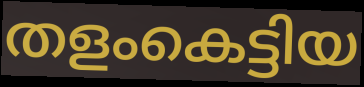
തളംകെട്ടിയ